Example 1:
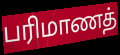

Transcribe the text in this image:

பரிமாணத்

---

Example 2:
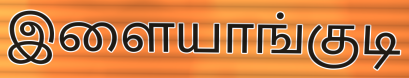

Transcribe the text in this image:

இளையாங்குடி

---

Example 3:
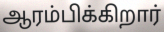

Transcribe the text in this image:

ஆரம்பிக்கிறார்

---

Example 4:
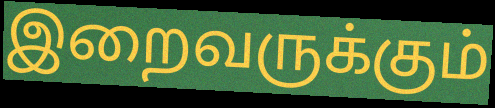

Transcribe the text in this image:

இறைவருக்கும்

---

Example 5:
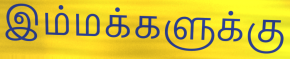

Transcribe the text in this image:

இம்மக்களுக்கு